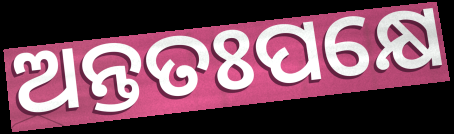
ଅନ୍ତତଃପକ୍ଷେ